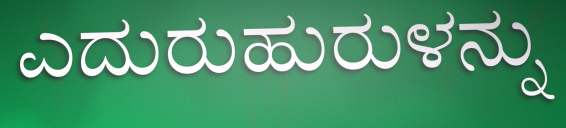
ಎದುರುಹುರುಳನ್ನು